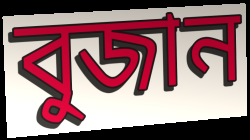
বুজান